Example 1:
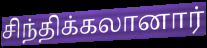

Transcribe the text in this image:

சிந்திக்கலானார்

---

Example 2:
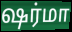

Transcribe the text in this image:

ஷர்மா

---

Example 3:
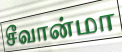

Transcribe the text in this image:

சீவான்மா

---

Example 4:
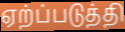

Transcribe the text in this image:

ஏற்ப்படுத்தி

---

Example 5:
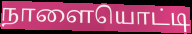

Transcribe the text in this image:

நாளையொட்டி